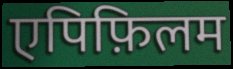
एपिफ़िलम